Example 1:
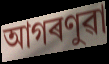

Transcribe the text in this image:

আগৰণুৱা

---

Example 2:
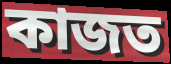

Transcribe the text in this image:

কাজত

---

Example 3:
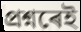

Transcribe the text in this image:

প্ৰশ্নৰেই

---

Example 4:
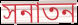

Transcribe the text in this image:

সনাতন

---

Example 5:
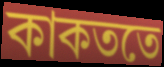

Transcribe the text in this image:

কাকততে